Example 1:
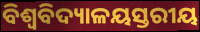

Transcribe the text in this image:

ବିଶ୍ଵବିଦ୍ୟାଳୟସ୍ତରୀୟ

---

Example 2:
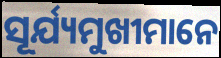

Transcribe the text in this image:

ସୂର୍ଯ୍ୟମୁଖୀମାନେ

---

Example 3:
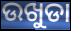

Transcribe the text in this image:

ଉଖୁଡା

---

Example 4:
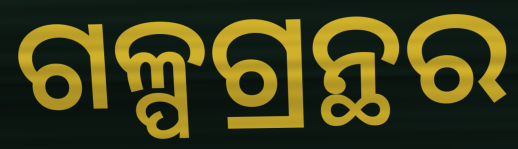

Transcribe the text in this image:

ଗଳ୍ପଗ୍ରନ୍ଥର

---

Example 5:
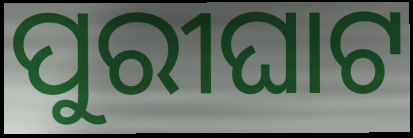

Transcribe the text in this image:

ପୁରୀଘାଟ